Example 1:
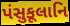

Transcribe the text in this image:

પંસુકૂલાનિ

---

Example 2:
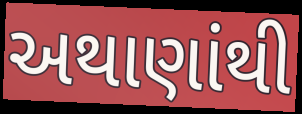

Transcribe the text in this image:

અથાણાંથી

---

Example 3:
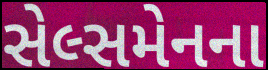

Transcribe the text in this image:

સેલ્સમેનના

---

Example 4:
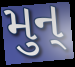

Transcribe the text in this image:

મુન્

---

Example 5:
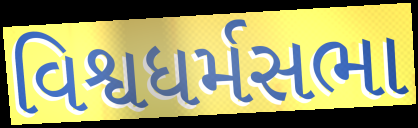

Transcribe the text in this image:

વિશ્વધર્મસભા